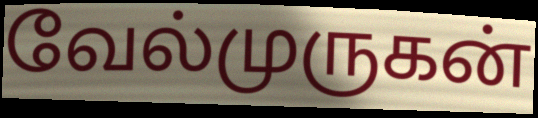
வேல்முருகன்